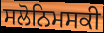
ਸਲੋਨਿਮਸਕੀ